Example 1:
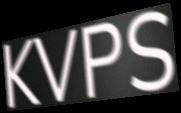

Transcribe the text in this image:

KVPS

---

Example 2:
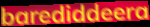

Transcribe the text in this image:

barediddeera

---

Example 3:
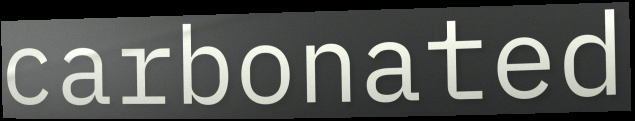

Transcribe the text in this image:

carbonated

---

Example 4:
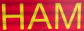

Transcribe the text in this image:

HAM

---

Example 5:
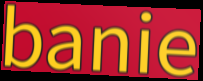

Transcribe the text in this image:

banie